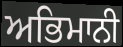
ਅਭਿਮਾਨੀ